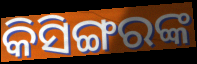
କିସିଙ୍ଗରଙ୍କ